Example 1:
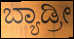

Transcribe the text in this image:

ಬ್ಯಾಡ್ರೀ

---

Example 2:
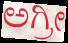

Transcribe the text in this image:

ಅಗ್ರೀ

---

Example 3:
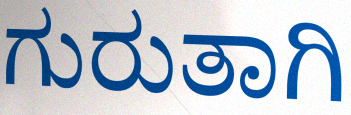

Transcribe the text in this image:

ಗುರುತಾಗಿ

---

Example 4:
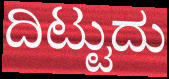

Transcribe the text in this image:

ದಿಟ್ಟುದು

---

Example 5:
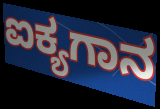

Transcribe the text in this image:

ಐಕ್ಯಗಾನ